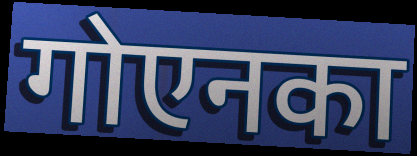
गोएनका